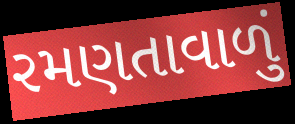
રમણતાવાળું